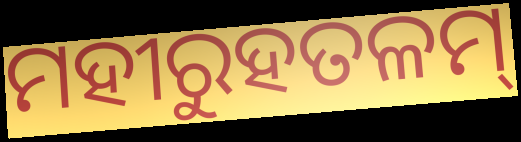
ମହୀରୁହତଳମ୍